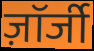
ज़ॉर्जी